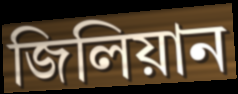
জিলিয়ান